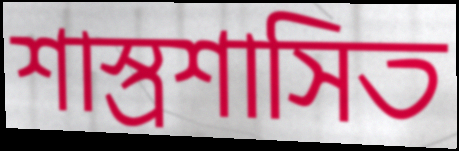
শাস্ত্রশাসিত